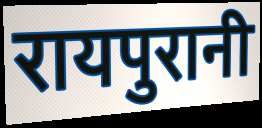
रायपुरानी